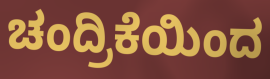
ಚಂದ್ರಿಕೆಯಿಂದ